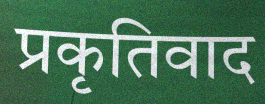
प्रकृतिवाद